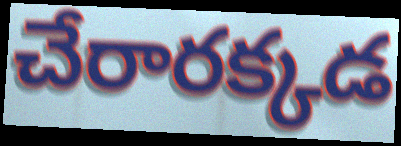
చేరారక్కడ